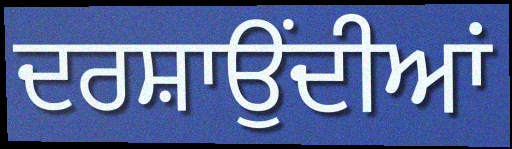
ਦਰਸ਼ਾਉਂਦੀਆਂ